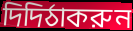
দিদিঠাকরুন